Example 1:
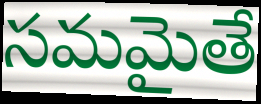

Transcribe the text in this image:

సమమైతే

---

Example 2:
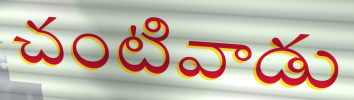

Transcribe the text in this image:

చంటివాడు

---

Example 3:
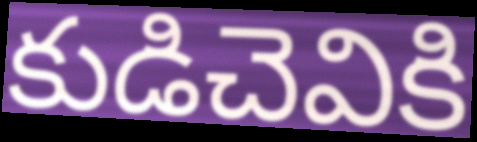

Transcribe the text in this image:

కుడిచెవికి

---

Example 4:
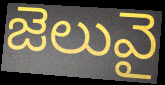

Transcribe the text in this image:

జెలువై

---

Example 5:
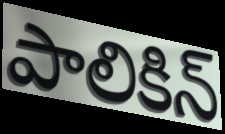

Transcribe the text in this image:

పాలికిన్